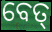
ବେତ୍